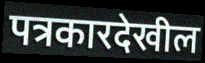
पत्रकारदेखील